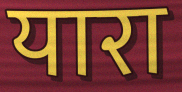
यारा